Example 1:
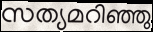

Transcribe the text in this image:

സത്യമറിഞ്ഞു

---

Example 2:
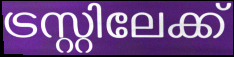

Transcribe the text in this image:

ട്രസ്റ്റിലേക്ക്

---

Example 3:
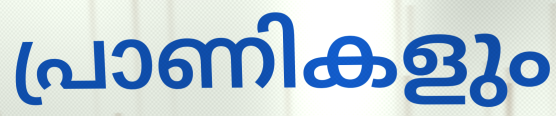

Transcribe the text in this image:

പ്രാണികളും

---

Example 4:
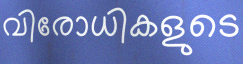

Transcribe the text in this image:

വിരോധികളുടെ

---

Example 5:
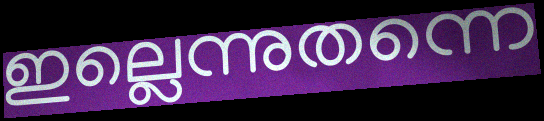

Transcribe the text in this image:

ഇല്ലെന്നുതന്നെ